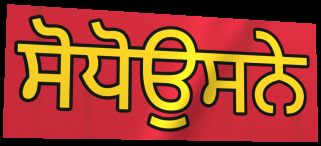
ਸੋਧੋਉਸਨੇ